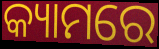
କ୍ୟାମରେ